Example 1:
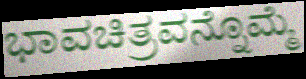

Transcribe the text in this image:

ಭಾವಚಿತ್ರವನ್ನೊಮ್ಮೆ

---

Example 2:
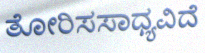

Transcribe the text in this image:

ತೋರಿಸಸಾಧ್ಯವಿದೆ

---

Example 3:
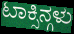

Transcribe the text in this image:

ಟಾಕ್ಸಿನ್ಗಳು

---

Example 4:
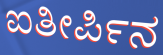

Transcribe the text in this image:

ಐತೀರ್ಪಿನ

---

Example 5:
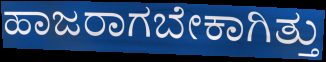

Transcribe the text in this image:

ಹಾಜರಾಗಬೇಕಾಗಿತ್ತು